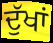
ਦੁੱਖਾਂ